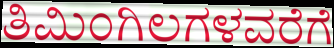
ತಿಮಿಂಗಿಲಗಳವರೆಗೆ